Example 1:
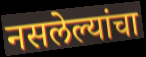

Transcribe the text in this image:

नसलेल्यांचा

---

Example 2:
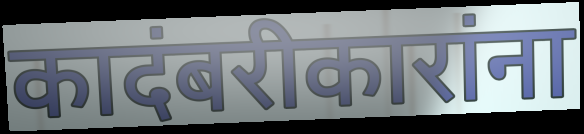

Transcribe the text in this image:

कादंबरीकारांना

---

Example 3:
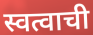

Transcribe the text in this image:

स्वत्वाची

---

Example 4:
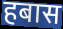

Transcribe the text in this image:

हबास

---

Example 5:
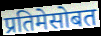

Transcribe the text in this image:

प्रतिमेसोबत